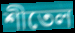
শীতেল